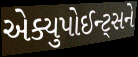
એક્યુપોઈન્ટ્સને